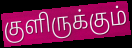
குளிருக்கும்